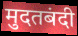
मुदतबंदी